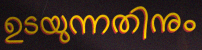
ഉടയുന്നതിനും